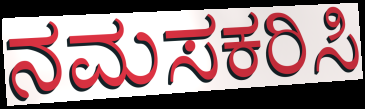
ನಮಸಕರಿಸಿ